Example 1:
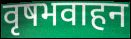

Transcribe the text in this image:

वृषभवाहन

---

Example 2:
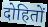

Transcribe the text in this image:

दोहितों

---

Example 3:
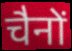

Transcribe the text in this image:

चैनों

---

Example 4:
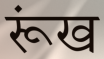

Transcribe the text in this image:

रूंख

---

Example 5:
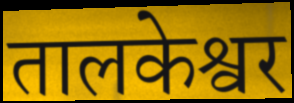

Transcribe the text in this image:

तालकेश्वर